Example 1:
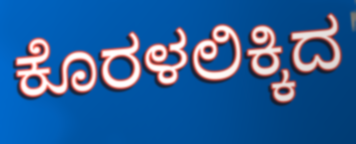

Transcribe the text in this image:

ಕೊರಳಲಿಕ್ಕಿದ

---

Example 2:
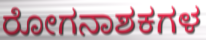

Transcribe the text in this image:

ರೋಗನಾಶಕಗಳ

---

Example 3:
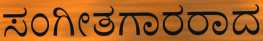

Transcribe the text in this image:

ಸಂಗೀತಗಾರರಾದ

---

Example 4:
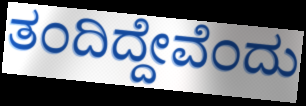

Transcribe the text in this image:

ತಂದಿದ್ದೇವೆಂದು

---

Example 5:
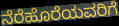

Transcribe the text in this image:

ನೆರೆಹೊರೆಯವರಿಗೆ